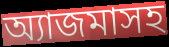
অ্যাজমাসহ